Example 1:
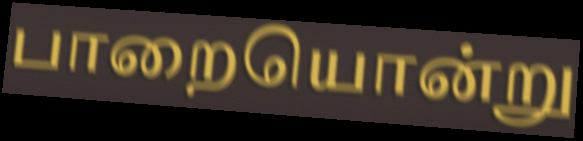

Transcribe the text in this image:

பாறையொன்று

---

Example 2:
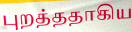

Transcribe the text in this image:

புறத்ததாகிய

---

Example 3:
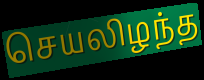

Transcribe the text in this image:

செயலிழந்த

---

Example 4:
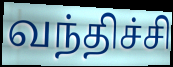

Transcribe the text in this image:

வந்திச்சி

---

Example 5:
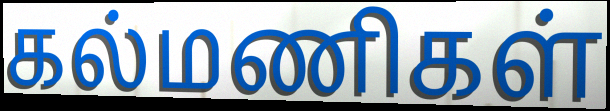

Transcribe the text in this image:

கல்மணிகள்